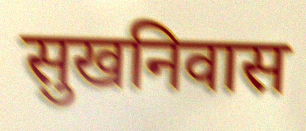
सुखनिवास